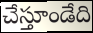
చేస్తూండేది